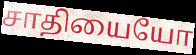
சாதியையோ